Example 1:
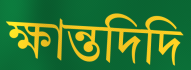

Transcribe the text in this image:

ক্ষান্তদিদি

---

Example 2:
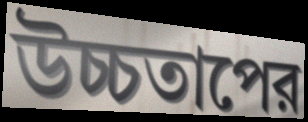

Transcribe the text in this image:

উচ্চতাপের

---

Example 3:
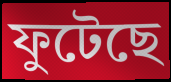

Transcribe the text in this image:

ফুটেছে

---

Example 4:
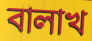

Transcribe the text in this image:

বালাখ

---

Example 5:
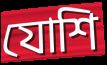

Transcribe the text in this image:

যোশি